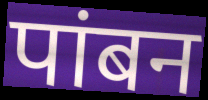
पांबन